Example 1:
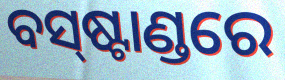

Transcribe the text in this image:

ବସ୍‌ଷ୍ଟାଣ୍ଡରେ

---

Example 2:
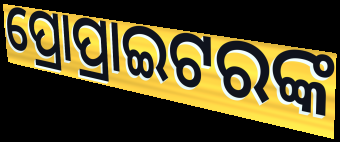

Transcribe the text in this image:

ପ୍ରୋପ୍ରାଇଟରଙ୍କ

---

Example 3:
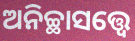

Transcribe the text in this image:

ଅନିଚ୍ଛାସତ୍ତ୍ବେ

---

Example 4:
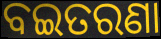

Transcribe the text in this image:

ବଇତରଣା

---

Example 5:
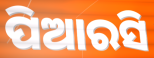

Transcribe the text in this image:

ପିଆରସି